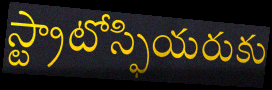
స్ట్రాటోస్ఫియరుకు